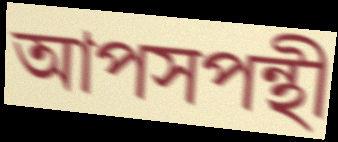
আপসপন্থী